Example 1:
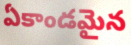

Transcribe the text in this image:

ఏకాండమైన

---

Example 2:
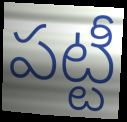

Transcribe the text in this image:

పట్టీ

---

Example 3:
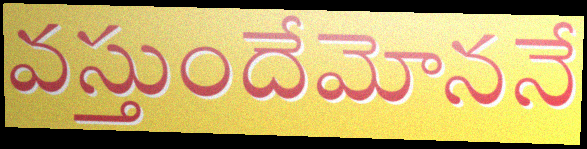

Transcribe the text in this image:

వస్తుందేమోననే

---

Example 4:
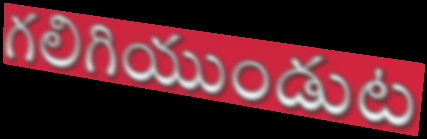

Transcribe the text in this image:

గలిగియుండుట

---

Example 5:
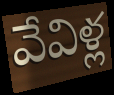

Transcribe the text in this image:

వేవిళ్ల